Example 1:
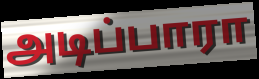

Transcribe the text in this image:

அடிப்பாரா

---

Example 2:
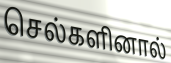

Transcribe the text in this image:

செல்களினால்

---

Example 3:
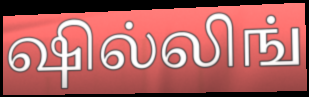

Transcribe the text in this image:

ஷில்லிங்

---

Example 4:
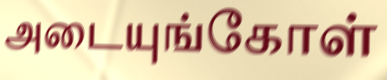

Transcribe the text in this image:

அடையுங்கோள்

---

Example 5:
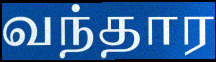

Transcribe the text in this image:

வந்தார